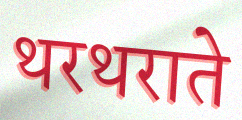
थरथराते